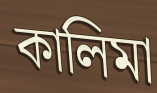
কালিমা